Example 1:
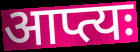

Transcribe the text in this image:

आप्त्यः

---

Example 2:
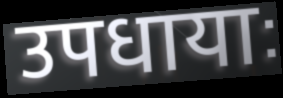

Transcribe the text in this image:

उपधायाः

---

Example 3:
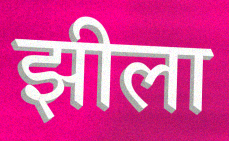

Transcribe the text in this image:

झीला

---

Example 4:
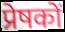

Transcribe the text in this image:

प्रेषकों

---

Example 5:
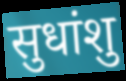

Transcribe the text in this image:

सुधांशु